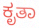
ಕೃತಾ